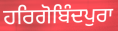
ਹਰਿਗੋਬਿੰਦਪੁਰਾ